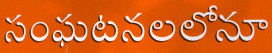
సంఘటనలలోనూ